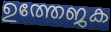
ഉത്തേജക